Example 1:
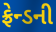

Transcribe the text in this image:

ફ્રેન્ડની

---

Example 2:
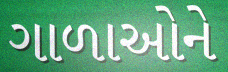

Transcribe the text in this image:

ગાળાઓને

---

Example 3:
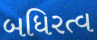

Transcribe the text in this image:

બધિરત્વ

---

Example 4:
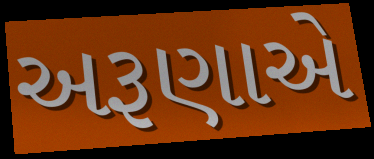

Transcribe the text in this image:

અરૂણાએ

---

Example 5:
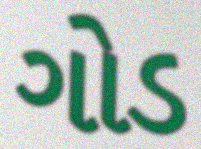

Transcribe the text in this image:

ગોડ